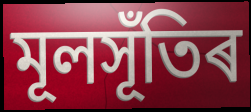
মূলসূঁতিৰ